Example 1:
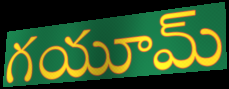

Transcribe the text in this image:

గయూమ్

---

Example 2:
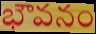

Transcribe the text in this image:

భౌవనం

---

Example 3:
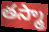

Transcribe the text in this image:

తస్మా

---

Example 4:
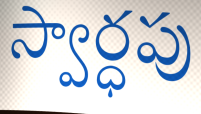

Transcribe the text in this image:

స్వార్ధపు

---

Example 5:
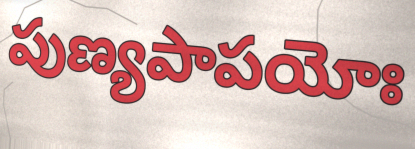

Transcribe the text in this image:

పుణ్యపాపయోః